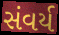
સંવર્ય